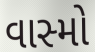
વાસ્મો